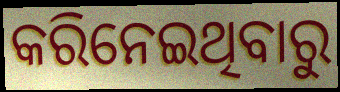
କରିନେଇଥିବାରୁ